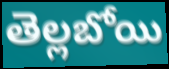
తెల్లబోయి